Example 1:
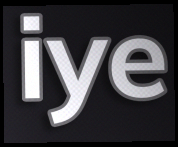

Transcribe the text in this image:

iye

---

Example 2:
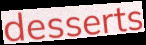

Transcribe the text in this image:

desserts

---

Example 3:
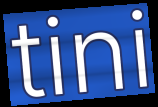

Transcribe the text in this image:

tini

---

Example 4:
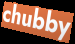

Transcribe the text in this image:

chubby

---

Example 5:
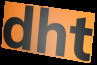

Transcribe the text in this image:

dht